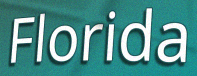
Florida